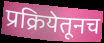
प्रक्रियेतूनच